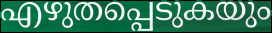
എഴുതപ്പെടുകയും